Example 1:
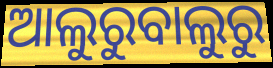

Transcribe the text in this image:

ଆଲୁରୁବାଲୁରୁ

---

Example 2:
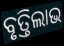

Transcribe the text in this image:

ବୃତ୍ତିଲାଭ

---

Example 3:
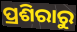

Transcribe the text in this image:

ପ୍ରଶିରାରୁ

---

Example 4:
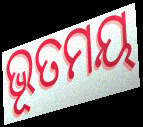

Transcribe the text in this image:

ଭୂତମୟ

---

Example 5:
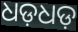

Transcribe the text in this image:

ଧଡ଼ଧଡ଼